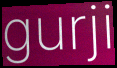
gurji